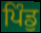
ਪਿੰਡੁ